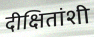
दीक्षितांशी